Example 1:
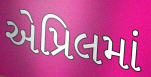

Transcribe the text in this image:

એપ્રિલમાં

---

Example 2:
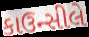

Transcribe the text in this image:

કાઉન્સીલે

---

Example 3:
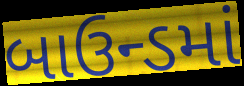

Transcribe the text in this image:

બાઉન્ડમાં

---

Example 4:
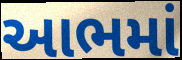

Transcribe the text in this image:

આભમાં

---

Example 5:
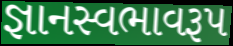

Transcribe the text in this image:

જ્ઞાનસ્વભાવરૂપ